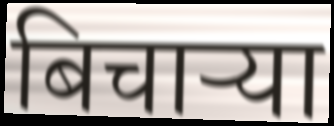
बिचाऱ्या